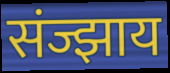
संज्झाय